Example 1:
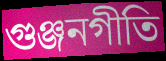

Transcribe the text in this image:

গুঞ্জনগীতি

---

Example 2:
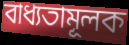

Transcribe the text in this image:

বাধ্যতামূলক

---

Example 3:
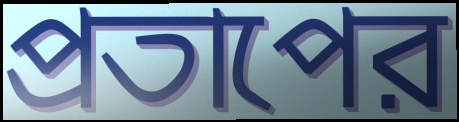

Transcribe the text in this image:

প্রতাপের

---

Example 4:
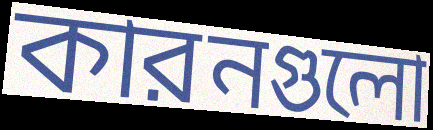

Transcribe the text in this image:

কারনগুলো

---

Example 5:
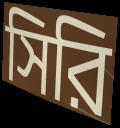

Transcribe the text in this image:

সিরি